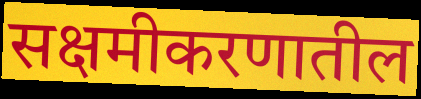
सक्षमीकरणातील